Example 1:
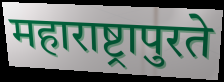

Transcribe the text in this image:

महाराष्ट्रापुरते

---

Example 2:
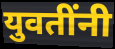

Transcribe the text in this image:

युवतींनी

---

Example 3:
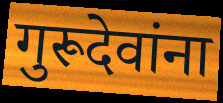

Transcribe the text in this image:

गुरूदेवांना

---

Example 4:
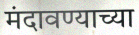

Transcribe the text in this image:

मंदावण्याच्या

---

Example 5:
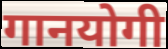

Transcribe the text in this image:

गानयोगी